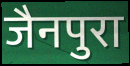
जैनपुरा